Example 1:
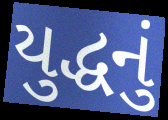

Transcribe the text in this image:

યુદ્ધનું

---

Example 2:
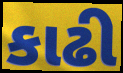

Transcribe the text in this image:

કાઢી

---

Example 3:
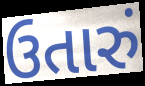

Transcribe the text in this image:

ઉતારું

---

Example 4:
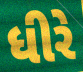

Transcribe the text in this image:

ધીરે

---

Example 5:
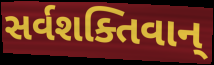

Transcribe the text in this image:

સર્વશક્તિવાન્